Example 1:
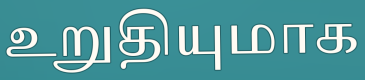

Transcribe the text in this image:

உறுதியுமாக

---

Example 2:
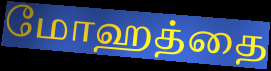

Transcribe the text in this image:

மோஹத்தை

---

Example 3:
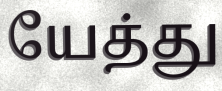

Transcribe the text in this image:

யேத்து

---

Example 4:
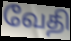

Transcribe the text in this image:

வேதி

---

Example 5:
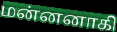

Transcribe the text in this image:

மன்னனாகி